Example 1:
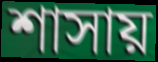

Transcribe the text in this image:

শাসায়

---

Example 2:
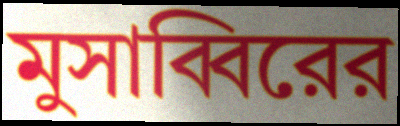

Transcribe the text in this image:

মুসাব্বিরের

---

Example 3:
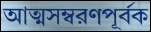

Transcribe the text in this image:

আত্মসম্বরণপূর্বক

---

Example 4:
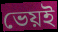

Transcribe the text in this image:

ভেয়ই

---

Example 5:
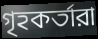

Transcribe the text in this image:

গৃহকর্তারা